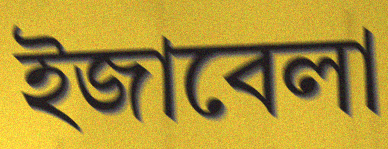
ইজাবেলা